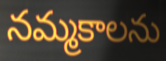
నమ్మకాలను